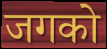
जगको